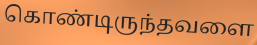
கொண்டிருந்தவளை